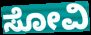
ಸೋವಿ